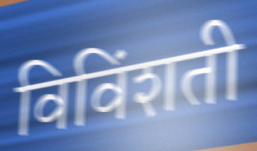
विविंशती